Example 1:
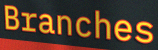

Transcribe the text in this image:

Branches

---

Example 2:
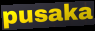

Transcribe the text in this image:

pusaka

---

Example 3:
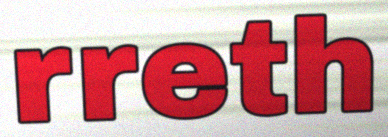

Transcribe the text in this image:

rreth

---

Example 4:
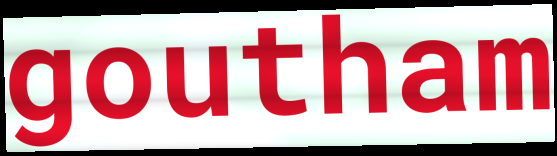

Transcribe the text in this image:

goutham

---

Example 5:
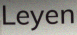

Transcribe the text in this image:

Leyen